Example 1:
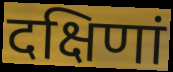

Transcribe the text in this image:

दक्षिणां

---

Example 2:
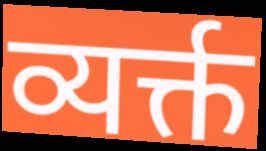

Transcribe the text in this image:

व्यर्क्त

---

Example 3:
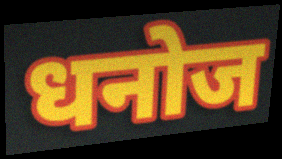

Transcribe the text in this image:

धनोज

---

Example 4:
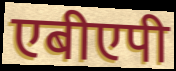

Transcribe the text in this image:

एबीएपी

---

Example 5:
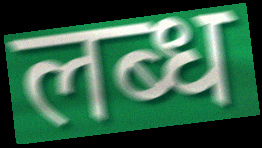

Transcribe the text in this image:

लब्ध